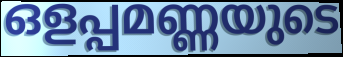
ഒളപ്പമണ്ണയുടെ